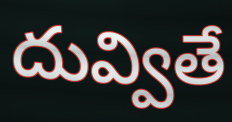
దువ్వితే